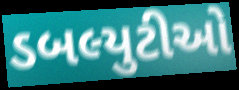
ડબલ્યુટીઓ